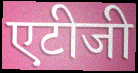
एटीजी